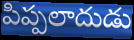
పిప్పలాదుడు